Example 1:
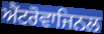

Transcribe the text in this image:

ਐਂਟਰੋਵਾਜਿਨਲ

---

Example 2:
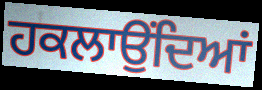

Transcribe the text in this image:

ਹਕਲਾਉਂਦਿਆਂ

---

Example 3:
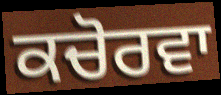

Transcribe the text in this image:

ਕਚੋਰਵਾ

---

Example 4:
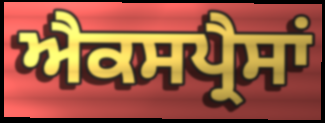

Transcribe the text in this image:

ਐਕਸਪ੍ਰੈਸਾਂ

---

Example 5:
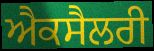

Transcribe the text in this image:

ਐਕਸੈਲਰੀ